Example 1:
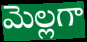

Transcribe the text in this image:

మెల్లగా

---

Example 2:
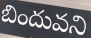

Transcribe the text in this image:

బిందువని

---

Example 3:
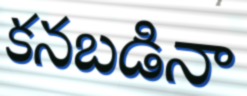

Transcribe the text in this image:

కనబడినా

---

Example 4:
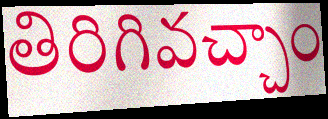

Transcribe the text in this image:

తిరిగివచ్చాం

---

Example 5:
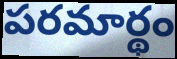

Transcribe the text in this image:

పరమార్థం